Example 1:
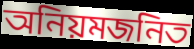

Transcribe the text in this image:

অনিয়মজনিত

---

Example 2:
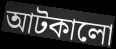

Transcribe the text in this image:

আটকালো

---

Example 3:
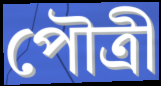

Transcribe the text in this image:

পৌত্রী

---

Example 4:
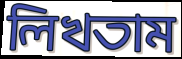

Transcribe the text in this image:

লিখতাম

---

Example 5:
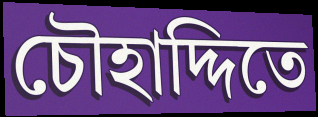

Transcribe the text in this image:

চৌহাদ্দিতে